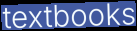
textbooks